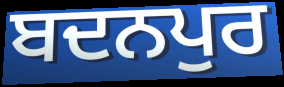
ਬਦਨਪੁਰ